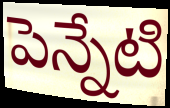
పెన్నేటి